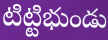
టిట్టిభుండు